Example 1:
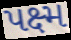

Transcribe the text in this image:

પક્ષ્મ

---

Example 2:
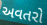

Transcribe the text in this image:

અવતરો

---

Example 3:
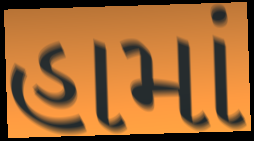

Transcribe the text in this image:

હામાં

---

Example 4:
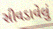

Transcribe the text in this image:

સીવડાવેલું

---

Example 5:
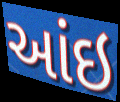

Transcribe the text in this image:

આંઇ